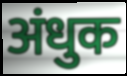
अंधुक